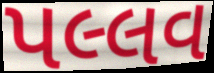
પલ્લવ